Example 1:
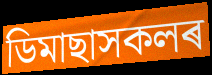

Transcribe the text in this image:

ডিমাছাসকলৰ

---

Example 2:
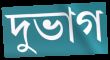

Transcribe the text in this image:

দুভাগ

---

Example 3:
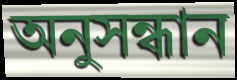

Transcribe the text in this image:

অনুসন্ধান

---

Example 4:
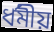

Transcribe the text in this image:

ৰ্ধমীয়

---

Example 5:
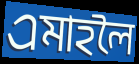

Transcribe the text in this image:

এমাহলৈ